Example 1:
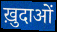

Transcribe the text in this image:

ख़ुदाओं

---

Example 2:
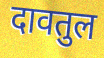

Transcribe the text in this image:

दावतुल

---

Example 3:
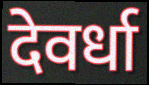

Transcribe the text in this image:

देवर्धा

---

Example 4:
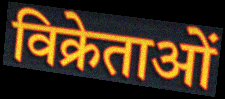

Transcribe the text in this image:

विक्रेताओं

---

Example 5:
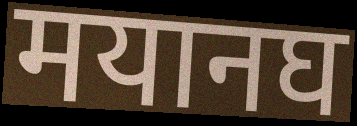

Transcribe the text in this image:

मयानघ